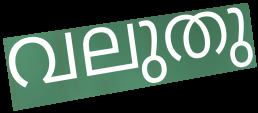
വലുതു